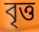
বৃত্ত